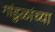
गांडुळांच्या